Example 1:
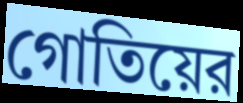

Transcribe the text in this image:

গোতিয়ের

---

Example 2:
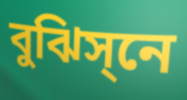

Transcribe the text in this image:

বুঝিস্‌নে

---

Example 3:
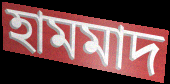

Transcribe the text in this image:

হামমাদ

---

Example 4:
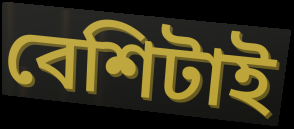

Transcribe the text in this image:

বেশিটাই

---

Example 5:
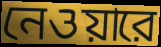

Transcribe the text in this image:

নেওয়ারে